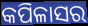
କପିଳାସର